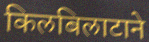
किलबिलाटाने